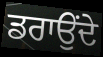
ਡਰਾਉਂਦੇ